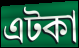
এটকা